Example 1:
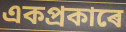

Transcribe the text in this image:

একপ্ৰকাৰে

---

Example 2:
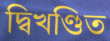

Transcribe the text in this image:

দ্বিখণ্ডিত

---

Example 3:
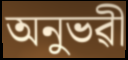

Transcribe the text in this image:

অনুভৱী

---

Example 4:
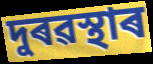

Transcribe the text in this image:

দুৰৱস্থাৰ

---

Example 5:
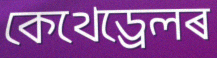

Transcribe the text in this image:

কেথেড্ৰেলৰ